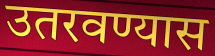
उतरवण्यास